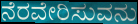
ನೆರವೇರಿಸುವನು